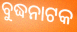
ବୁଦ୍ଧନାଟକ